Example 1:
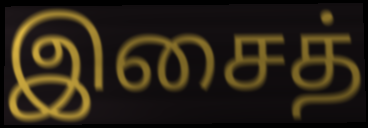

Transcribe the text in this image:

இசைத்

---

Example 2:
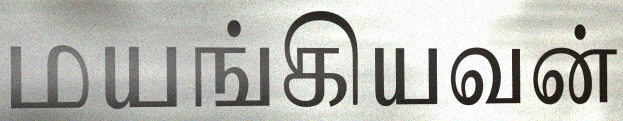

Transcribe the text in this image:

மயங்கியவன்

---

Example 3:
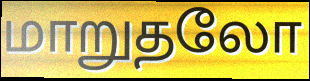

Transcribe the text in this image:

மாறுதலோ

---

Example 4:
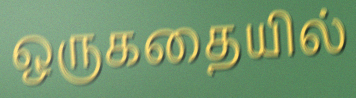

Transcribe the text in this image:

ஒருகதையில்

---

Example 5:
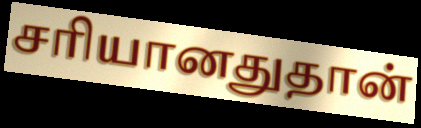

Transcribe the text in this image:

சரியானதுதான்